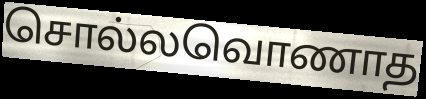
சொல்லவொணாத